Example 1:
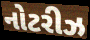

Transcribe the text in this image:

નોટરીઝ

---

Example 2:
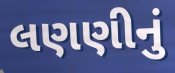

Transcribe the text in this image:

લણણીનું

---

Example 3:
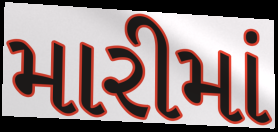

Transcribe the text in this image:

મારીમાં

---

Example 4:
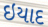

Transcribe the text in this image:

ઇયાદ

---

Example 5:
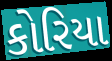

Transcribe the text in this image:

કોરિયા